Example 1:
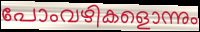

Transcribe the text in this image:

പോംവഴികളൊന്നും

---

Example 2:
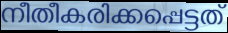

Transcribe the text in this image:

നീതീകരിക്കപ്പെട്ടത്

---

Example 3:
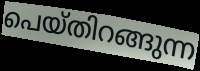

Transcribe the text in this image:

പെയ്തിറങ്ങുന്ന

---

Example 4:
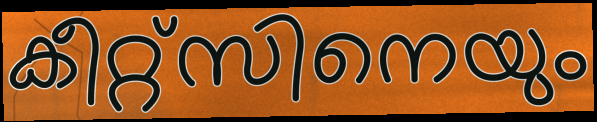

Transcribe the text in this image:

കീറ്റ്സിനെയും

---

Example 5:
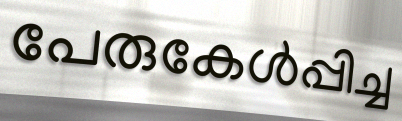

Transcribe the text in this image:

പേരുകേൾപ്പിച്ച